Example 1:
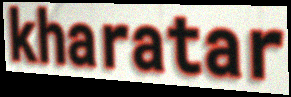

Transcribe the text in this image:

kharatar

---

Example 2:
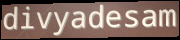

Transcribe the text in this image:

divyadesam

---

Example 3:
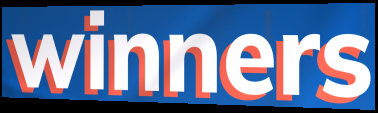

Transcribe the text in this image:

winners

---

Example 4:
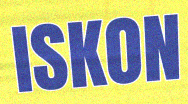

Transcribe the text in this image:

ISKON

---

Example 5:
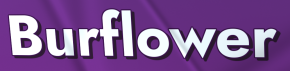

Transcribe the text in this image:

Burflower